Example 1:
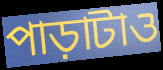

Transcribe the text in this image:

পাড়াটাও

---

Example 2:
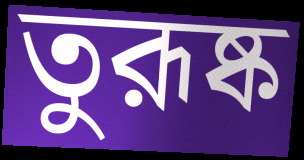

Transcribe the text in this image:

তুরূষ্ক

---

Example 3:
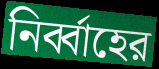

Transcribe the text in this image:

নির্ব্বাহের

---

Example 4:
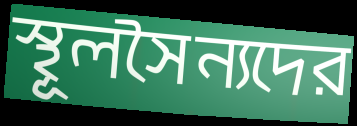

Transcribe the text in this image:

স্থূলসৈন্যদের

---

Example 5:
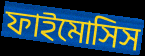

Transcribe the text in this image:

ফাইমোসিস